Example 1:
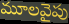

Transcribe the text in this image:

మూలవైపు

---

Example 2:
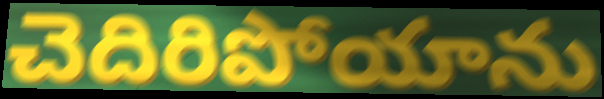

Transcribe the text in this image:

చెదిరిపోయాను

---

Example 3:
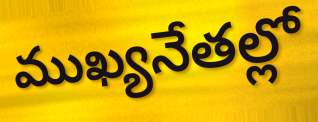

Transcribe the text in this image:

ముఖ్యనేతల్లో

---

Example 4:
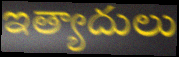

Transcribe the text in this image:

ఇత్యాదులు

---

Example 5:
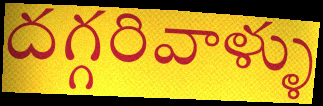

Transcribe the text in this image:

దగ్గరివాళ్ళు